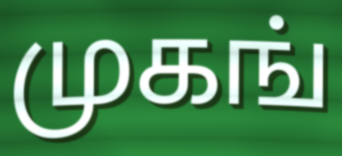
முகங்